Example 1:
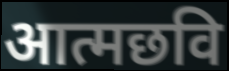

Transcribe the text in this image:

आत्मछवि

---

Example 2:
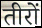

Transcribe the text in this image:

तीरों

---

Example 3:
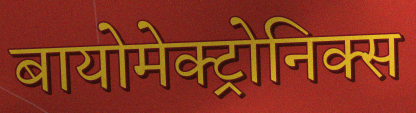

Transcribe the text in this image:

बायोमेक्ट्रोनिक्स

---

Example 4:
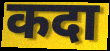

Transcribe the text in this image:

कदा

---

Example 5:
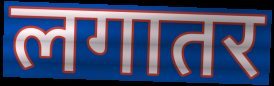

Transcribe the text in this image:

लगातर